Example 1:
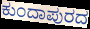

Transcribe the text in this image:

ಕುಂದಾಪುರದ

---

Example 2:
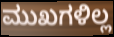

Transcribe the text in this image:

ಮುಖಗಳಿಲ್ಲ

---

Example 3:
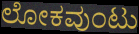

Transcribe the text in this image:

ಲೋಕವುಂಟು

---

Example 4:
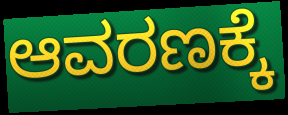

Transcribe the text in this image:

ಆವರಣಕ್ಕೆ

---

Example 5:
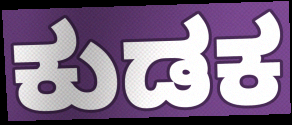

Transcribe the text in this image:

ಕುಡಕ